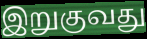
இறுகுவது